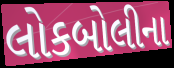
લોકબોલીના